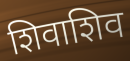
शिवाशिव